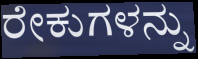
ರೇಕುಗಳನ್ನು